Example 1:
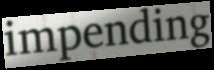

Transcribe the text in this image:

impending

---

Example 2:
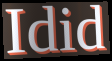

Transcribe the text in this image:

Idid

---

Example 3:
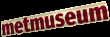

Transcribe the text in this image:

metmuseum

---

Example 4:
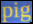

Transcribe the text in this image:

pig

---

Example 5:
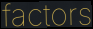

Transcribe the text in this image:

factors